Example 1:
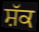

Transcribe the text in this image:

ਸ਼ੱਕ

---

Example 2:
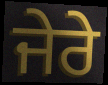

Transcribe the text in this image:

ਜੇਰੇ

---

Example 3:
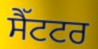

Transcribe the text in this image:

ਸੈੱਟਟਰ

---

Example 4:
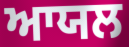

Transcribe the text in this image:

ਆਯਲ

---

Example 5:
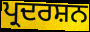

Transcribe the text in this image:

ਪ੍ਰਦਰਸ਼ਨ